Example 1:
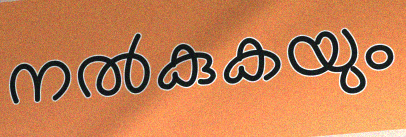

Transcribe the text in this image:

നൽകുകയും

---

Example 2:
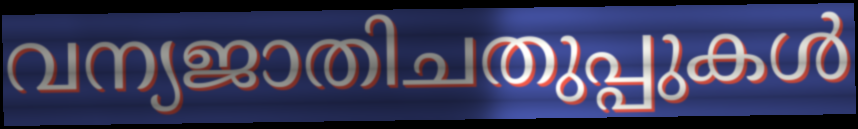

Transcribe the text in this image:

വന്യജാതിചതുപ്പുകൾ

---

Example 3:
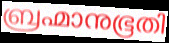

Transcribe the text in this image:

ബ്രഹ്മാനുഭൂതി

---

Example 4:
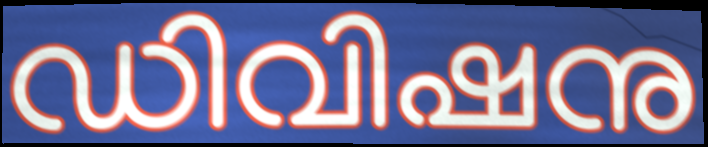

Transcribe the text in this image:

ഡിവിഷനു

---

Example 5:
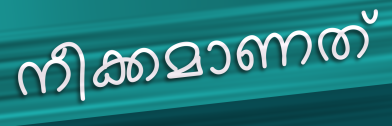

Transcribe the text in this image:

നീക്കമാണത്